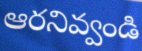
ఆరనివ్వండి